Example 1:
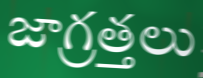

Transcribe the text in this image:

జాగ్రత్తలు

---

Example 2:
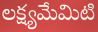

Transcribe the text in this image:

లక్ష్యమేమిటి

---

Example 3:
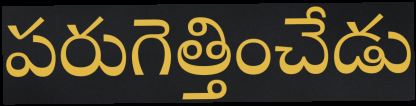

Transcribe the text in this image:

పరుగెత్తించేడు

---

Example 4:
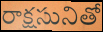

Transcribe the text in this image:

రాక్షసునితో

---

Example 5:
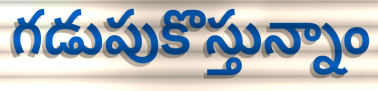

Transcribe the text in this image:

గడుపుకొస్తున్నాం